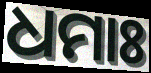
ଧମାଃ